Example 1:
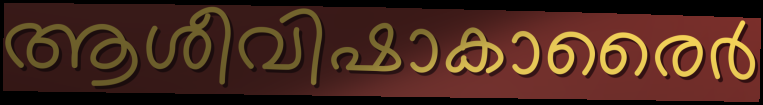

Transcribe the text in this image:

ആശീവിഷാകാരൈർ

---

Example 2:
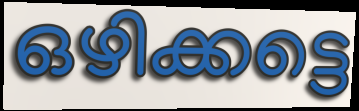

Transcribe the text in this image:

ഒഴിക്കട്ടെ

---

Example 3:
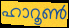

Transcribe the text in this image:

ഹാറൂൺ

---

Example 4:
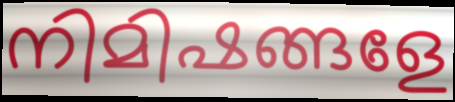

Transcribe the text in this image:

നിമിഷങ്ങളേ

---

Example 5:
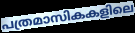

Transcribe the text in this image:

പത്രമാസികകളിലെ